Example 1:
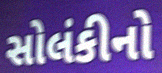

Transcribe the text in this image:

સોલંકીનો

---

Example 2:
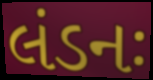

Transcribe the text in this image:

લંડનઃ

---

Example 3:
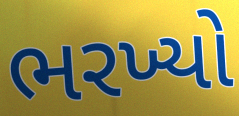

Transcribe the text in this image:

ભરખ્યો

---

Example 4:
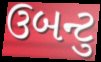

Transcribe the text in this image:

ઉબન્ટુ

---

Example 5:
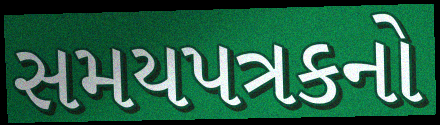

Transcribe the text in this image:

સમયપત્રકનો